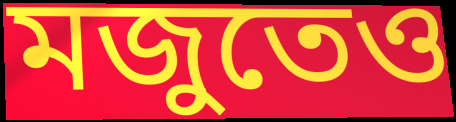
মজুতেও